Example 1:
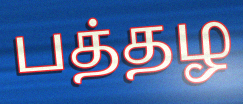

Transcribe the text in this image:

பத்தழ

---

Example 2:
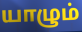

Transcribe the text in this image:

யாழும்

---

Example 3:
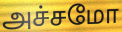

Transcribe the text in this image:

அச்சமோ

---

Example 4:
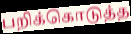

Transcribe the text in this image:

பறிக்கொடுத்த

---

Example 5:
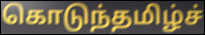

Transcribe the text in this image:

கொடுந்தமிழ்ச்